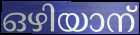
ഒഴിയാന്